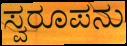
ಸ್ವರೂಪನು